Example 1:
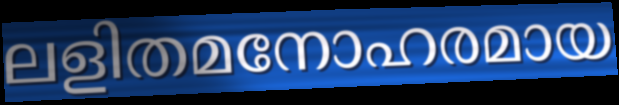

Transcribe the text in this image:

ലളിതമനോഹരമായ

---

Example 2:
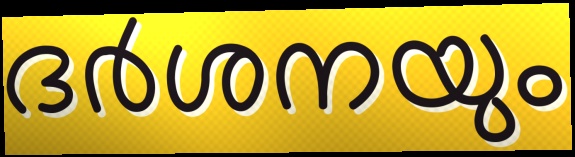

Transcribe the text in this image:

ദർശനയും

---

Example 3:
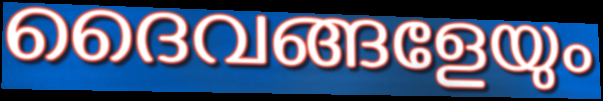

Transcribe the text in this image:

ദൈവങ്ങളേയും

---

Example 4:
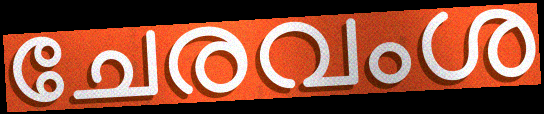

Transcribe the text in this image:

ചേരവംശ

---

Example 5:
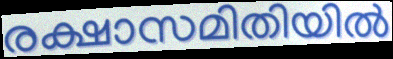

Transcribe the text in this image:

രക്ഷാസമിതിയിൽ